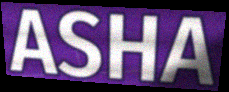
ASHA